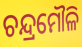
ଚନ୍ଦ୍ରମୌଳି